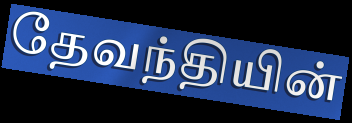
தேவந்தியின்